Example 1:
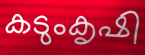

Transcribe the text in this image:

കടുംകൃഷി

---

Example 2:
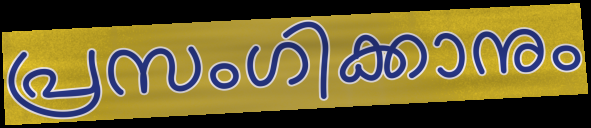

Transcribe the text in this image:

പ്രസംഗിക്കാനും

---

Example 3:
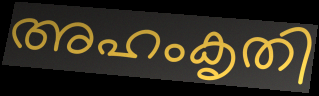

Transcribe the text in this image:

അഹംകൃതി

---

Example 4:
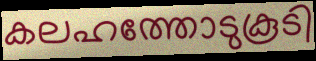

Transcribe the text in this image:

കലഹത്തോടുകൂടി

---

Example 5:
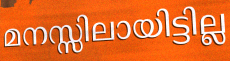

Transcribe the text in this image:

മനസ്സിലായിട്ടില്ല